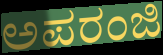
ಅಪರಂಜಿ